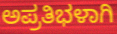
ಅಪ್ರತಿಭಳಾಗಿ